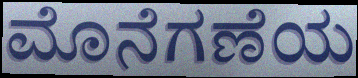
ಮೊನೆಗಣೆಯ